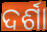
ଦର୍ଶା